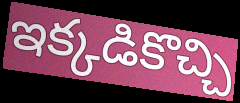
ఇక్కడికొచ్చి